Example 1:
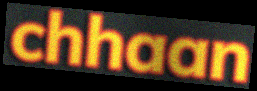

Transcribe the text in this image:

chhaan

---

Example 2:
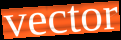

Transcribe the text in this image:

vector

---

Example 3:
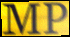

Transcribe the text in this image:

MP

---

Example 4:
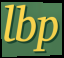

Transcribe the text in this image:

lbp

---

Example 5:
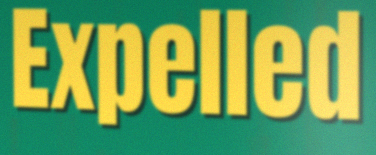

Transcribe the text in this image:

Expelled